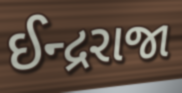
ઈન્દ્રરાજા